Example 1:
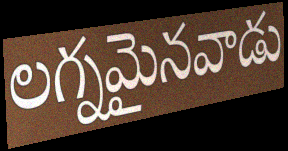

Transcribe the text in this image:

లగ్నమైనవాడు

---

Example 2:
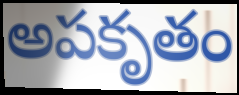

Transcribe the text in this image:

అపకృతం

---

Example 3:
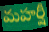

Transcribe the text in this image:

మహర్షీ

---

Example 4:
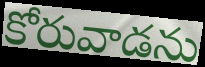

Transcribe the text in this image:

కోరువాడను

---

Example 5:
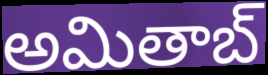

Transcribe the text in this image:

అమితాబ్